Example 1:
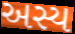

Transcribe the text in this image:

અસ્ય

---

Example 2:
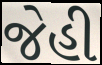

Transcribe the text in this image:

જેહી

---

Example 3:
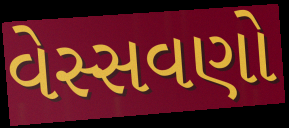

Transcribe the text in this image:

વેસ્સવણો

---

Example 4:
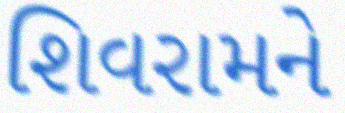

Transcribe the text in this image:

શિવરામને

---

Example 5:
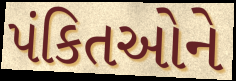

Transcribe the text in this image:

પંકિતઓને